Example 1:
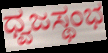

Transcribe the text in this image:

ಧ್ವಜಸ್ಥಂಭ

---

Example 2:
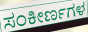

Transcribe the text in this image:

ಸಂಕೀರ್ಣಗಳ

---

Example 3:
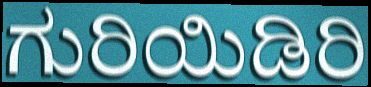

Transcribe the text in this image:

ಗುರಿಯಿಡಿರಿ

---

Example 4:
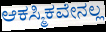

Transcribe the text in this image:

ಆಕಸ್ಮಿಕವೇನಲ್ಲ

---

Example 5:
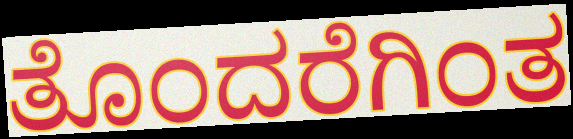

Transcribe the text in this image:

ತೊಂದರೆಗಿಂತ